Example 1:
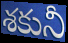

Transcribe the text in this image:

శకునీ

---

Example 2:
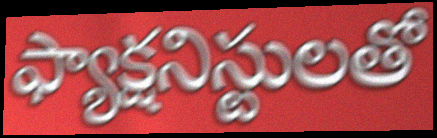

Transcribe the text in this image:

ఫ్యాక్షనిస్టులతో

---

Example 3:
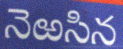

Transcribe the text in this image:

నెఱసిన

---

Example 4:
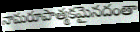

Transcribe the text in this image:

నామరూపాత్మకమైనదంతా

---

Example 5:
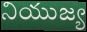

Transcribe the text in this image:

నియుజ్య